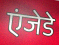
एंजेडे